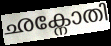
ഛക്നോതി